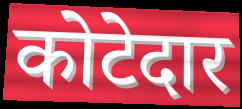
कोटेदार